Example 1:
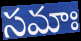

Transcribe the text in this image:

సమాః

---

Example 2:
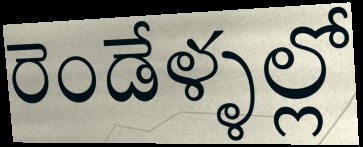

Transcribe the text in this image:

రెండేళ్ళల్లో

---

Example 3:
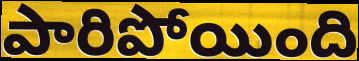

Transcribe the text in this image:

పారిపోయింది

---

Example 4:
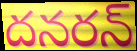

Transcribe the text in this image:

దనరన్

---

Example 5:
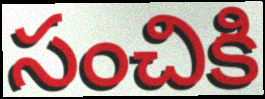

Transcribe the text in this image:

సంచికి